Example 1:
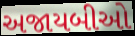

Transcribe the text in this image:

અજાયબીઓ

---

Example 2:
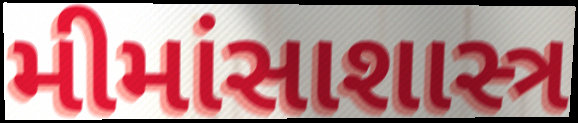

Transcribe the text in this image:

મીમાંસાશાસ્ત્ર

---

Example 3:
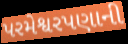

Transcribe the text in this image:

પરમેશ્વરપણાની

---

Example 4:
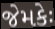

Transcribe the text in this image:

જેમકેઃ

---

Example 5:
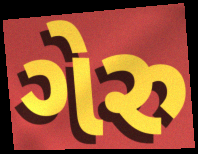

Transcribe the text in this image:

ગેરુ